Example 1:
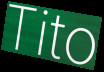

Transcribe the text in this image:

Tito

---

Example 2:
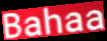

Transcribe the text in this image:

Bahaa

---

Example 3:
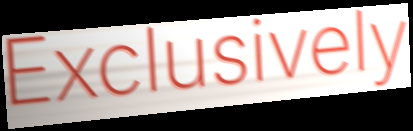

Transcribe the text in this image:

Exclusively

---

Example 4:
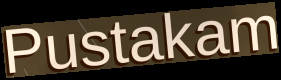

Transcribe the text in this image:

Pustakam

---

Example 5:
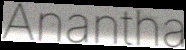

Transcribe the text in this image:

Anantha